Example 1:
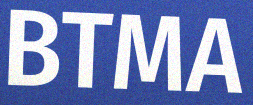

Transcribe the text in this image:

BTMA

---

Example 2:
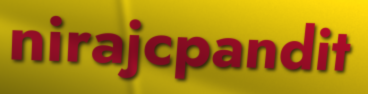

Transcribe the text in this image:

nirajcpandit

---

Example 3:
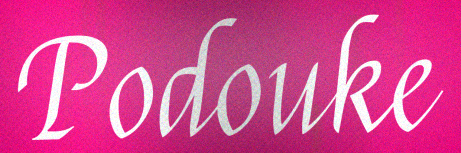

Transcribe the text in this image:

Podouke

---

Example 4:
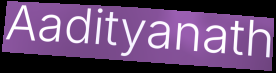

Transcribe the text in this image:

Aadityanath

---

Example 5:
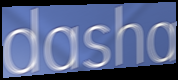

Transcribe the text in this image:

dasha